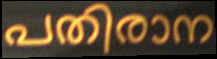
പതിരാന